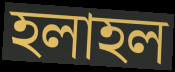
হলাহল